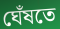
ঘেঁষতে